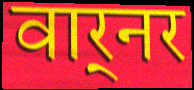
वार्नर